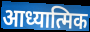
आध्यात्मिक